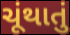
ચૂંથાતું